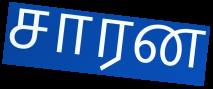
சாரன